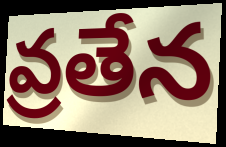
వ్రతేన